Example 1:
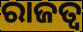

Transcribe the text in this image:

ରାଜତ୍ଵ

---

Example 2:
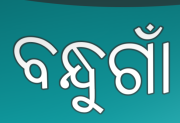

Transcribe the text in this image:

ବନ୍ଧୁଗାଁ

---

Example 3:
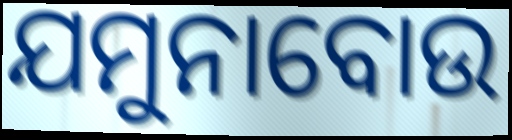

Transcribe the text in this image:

ଯମୁନାବୋଉ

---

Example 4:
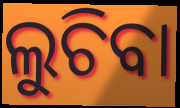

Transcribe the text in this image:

ଲୁଚିବା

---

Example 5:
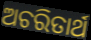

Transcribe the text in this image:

ଅଚରିତାର୍ଥ